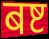
बष्ट